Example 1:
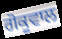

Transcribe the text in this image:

ਗੋਕੂਵਾਲ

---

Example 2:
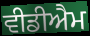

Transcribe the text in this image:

ਵੀਡੀਐਮ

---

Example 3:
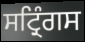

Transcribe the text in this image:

ਸਟ੍ਰਿੰਗਸ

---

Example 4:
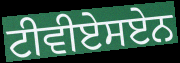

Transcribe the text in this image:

ਟੀਵੀਏਸਏਨ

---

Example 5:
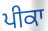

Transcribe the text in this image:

ਪੀਕਾ